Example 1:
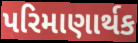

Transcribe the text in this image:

પરિમાણાર્થક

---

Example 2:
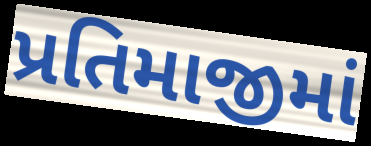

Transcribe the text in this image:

પ્રતિમાજીમાં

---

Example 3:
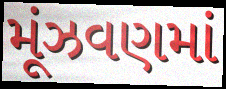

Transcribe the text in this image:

મૂંઝવણમાં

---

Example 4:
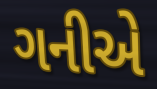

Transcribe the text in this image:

ગનીએ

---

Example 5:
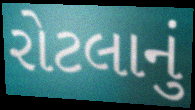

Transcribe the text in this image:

રોટલાનું